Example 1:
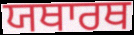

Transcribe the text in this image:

ਯਥਾਰਥ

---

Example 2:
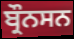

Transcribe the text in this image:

ਬ੍ਰੌਨਸਨ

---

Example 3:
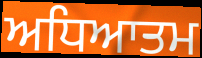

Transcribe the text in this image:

ਅਧਿਆਤਮ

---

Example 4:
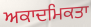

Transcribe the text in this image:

ਅਕਾਦਮਿਕਤਾ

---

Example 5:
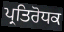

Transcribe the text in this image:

ਪ੍ਰਤਿਰੋਧਕ